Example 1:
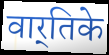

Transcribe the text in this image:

वार्तिके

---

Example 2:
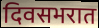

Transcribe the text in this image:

दिवसभरात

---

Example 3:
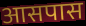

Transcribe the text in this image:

आसपास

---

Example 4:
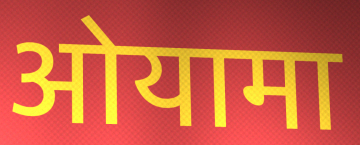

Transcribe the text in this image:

ओयामा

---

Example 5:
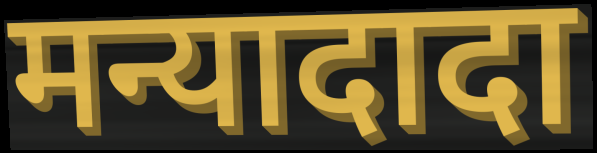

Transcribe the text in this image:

मन्यादादा